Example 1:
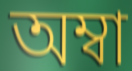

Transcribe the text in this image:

অম্বা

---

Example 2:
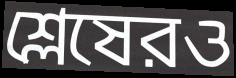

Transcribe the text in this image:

শ্লেষেরও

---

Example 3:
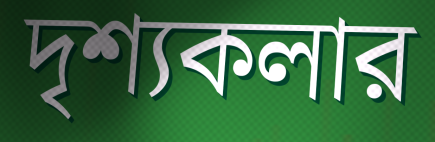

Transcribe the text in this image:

দৃশ্যকলার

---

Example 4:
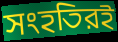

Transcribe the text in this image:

সংহতিরই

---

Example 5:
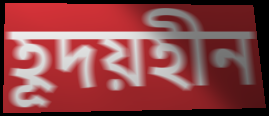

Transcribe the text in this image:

হূদয়হীন